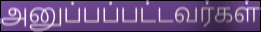
அனுப்பப்பட்டவர்கள்